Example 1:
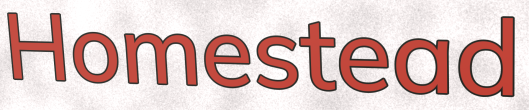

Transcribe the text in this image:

Homestead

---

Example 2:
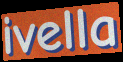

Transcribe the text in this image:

ivella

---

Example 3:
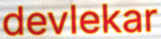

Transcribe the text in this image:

devlekar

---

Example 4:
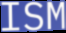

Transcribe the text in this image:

ISM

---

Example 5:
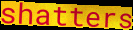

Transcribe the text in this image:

shatters